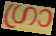
ഗ്രാ